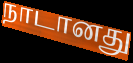
நாடானது